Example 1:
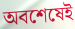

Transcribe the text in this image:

অবশেষেই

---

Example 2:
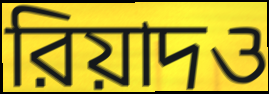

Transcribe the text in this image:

রিয়াদও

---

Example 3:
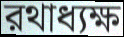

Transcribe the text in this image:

রথাধ্যক্ষ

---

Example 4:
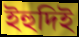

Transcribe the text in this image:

ইহুদিই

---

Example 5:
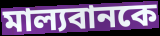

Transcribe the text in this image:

মাল্যবানকে